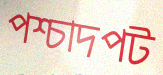
পশ্চাদপট